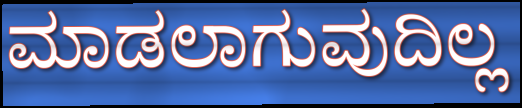
ಮಾಡಲಾಗುವುದಿಲ್ಲ